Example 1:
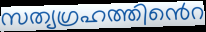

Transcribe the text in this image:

സത്യഗ്രഹത്തിൻെറ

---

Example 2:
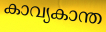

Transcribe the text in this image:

കാവ്യകാന്ത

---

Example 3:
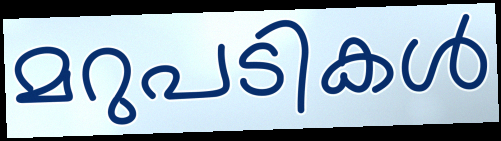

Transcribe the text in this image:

മറുപടികൾ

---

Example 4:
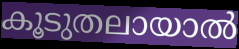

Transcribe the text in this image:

കൂടുതലായാൽ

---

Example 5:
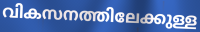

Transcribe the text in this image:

വികസനത്തിലേക്കുള്ള